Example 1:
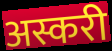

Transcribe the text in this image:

अस्करी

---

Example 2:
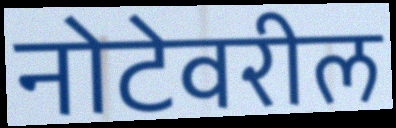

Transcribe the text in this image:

नोटेवरील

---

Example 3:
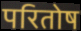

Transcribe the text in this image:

परितोष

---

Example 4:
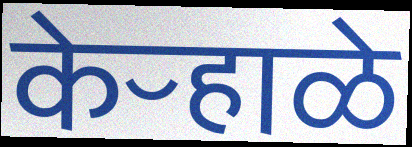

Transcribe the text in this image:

केऱ्हाळे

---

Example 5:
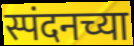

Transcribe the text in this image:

स्पंदनच्या